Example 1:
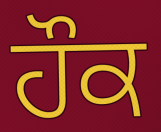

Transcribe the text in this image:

ਹੌਕ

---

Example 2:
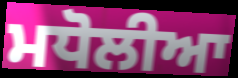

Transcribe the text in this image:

ਮਧੋਲੀਆ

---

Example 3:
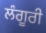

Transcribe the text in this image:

ਲੰਗੂਰੀ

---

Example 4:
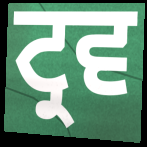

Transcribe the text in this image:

ਟ੍ਰਵ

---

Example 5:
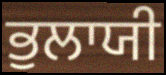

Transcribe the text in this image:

ਭੁਲਾਯੀ